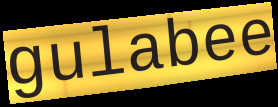
gulabee